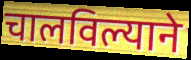
चालविल्याने